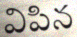
విపిన